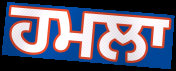
ਹਮਲਾ